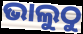
ଭାଲୁଠୁ